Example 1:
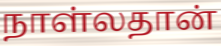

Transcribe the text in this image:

நாள்லதான்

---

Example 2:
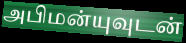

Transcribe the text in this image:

அபிமன்யுவுடன்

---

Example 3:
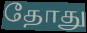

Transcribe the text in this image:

தோது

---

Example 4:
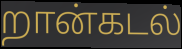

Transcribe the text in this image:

றான்கடல்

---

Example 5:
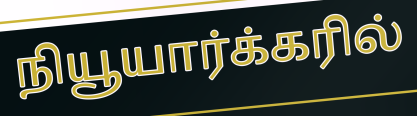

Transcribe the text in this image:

நியூயார்க்கரில்